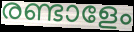
രണ്ടാളേം